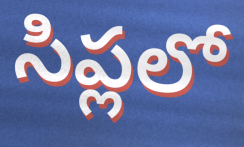
సిప్లలో